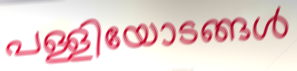
പള്ളിയോടങ്ങൾ